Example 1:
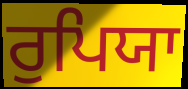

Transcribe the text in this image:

ਰੁਪਿਯਾ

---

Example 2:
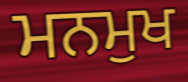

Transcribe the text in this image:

ਮਨਮੁਖ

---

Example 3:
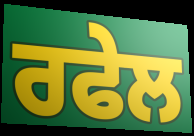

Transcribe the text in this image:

ਰਫੇਲ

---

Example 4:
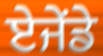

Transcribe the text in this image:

ਏਜੇਂਡੇ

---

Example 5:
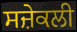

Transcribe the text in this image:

ਸਜ਼ੇਕਲੀ